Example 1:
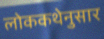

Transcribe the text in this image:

लोककथेनुसार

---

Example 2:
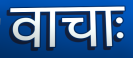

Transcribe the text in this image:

वाचाः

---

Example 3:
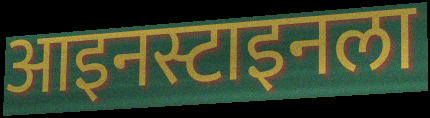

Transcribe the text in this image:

आइनस्टाइनला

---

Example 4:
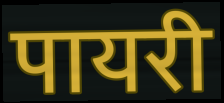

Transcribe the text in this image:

पायरी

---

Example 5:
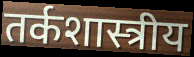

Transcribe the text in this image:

तर्कशास्त्रीय